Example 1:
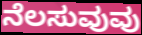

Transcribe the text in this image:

ನೆಲಸುವುವು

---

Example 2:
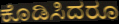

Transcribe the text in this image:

ಕೊಡಿಸಿದರೂ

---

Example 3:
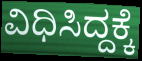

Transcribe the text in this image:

ವಿಧಿಸಿದ್ದಕ್ಕೆ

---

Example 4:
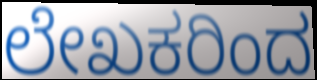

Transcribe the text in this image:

ಲೇಖಕರಿಂದ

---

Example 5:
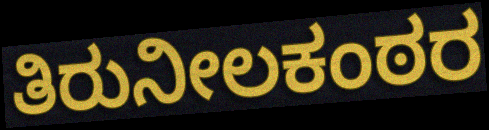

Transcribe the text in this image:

ತಿರುನೀಲಕಂಠರ